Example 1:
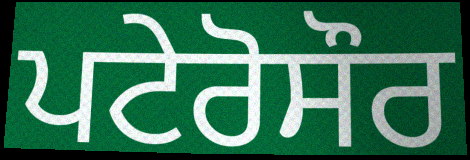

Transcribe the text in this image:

ਪਟੇਰੋਸੌਰ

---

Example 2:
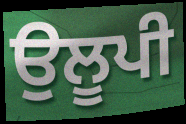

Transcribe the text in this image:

ਉਲੂਪੀ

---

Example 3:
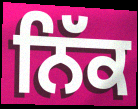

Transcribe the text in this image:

ਨਿੱਕ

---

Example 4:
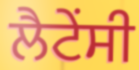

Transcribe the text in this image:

ਲੈਟੇਂਸੀ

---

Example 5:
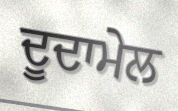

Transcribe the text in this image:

ਦੂਦਾਮੇਲ